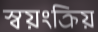
স্বয়ংক্রিয়